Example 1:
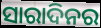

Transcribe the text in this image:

ସାରାଦିନର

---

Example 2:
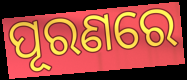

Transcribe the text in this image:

ପୂରଣରେ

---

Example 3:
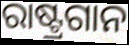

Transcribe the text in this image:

ରାଷ୍ଟ୍ରଗାନ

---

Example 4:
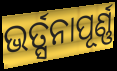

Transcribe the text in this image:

ଭର୍ତ୍ସନାପୂର୍ଣ୍ଣ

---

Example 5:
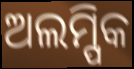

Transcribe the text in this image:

ଅଲମ୍ପିକ